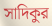
সাদিকুর